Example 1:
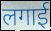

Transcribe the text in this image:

लगाई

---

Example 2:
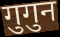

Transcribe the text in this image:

गुगुन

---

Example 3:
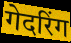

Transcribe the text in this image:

गेदरिंग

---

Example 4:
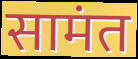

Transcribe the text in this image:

सामंत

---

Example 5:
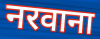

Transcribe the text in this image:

नरवाना